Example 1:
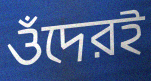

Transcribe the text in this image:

ওঁদেরই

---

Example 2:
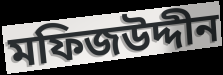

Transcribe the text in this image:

মফিজউদ্দীন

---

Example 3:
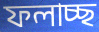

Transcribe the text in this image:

ফলাচ্ছ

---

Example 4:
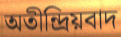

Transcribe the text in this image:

অতীন্দ্রিয়বাদ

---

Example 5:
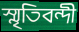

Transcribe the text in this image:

স্মৃতিবন্দী